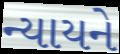
ન્યાયને